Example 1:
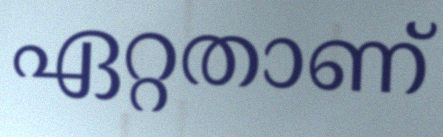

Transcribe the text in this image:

ഏറ്റതാണ്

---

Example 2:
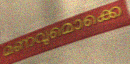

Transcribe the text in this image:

മണവുമൊക്കെ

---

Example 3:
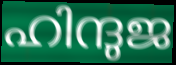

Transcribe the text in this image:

ഹിന്ദുജ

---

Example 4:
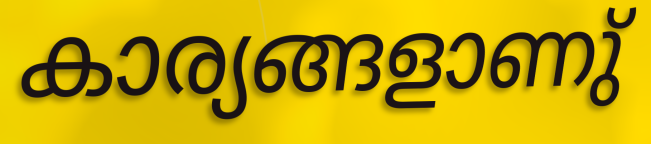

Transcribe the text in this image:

കാര്യങ്ങളാണു്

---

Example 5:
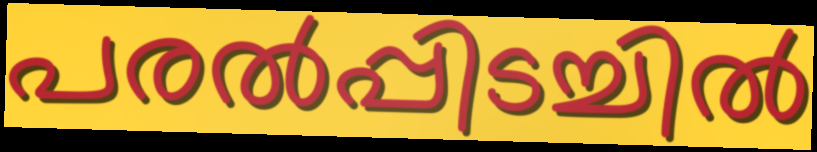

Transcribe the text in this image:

പരൽപ്പിടച്ചിൽ